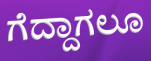
ಗೆದ್ದಾಗಲೂ